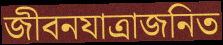
জীবনযাত্রাজনিত